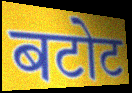
बटोट